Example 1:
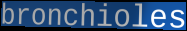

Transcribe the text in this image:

bronchioles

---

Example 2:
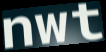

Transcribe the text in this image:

nwt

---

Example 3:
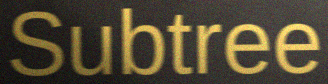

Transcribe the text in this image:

Subtree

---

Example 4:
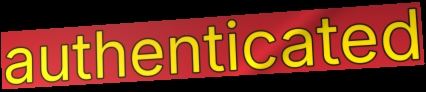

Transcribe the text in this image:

authenticated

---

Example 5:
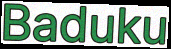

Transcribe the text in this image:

Baduku